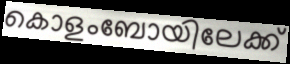
കൊളംബോയിലേക്ക്